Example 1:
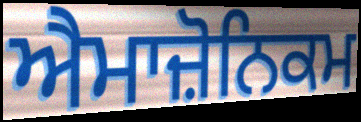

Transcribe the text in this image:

ਐਮਾਜ਼ੋਨਿਕਮ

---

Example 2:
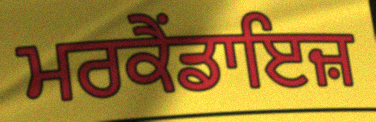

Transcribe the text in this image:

ਮਰਕੈਂਡਾਇਜ਼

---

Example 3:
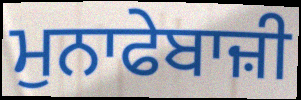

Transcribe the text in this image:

ਮੁਨਾਫੇਬਾਜ਼ੀ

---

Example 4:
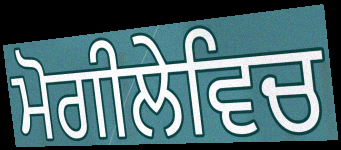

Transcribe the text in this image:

ਮੋਗੀਲੇਵਿਚ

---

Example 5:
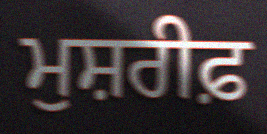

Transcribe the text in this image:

ਮੁਸ਼ਰੀਫ਼